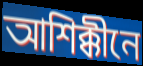
আশিক্কীনে